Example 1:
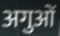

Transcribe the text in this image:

अगुओं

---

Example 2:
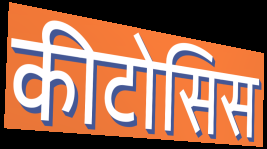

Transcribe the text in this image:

कीटोसिस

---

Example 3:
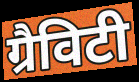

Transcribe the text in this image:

ग्रैविटी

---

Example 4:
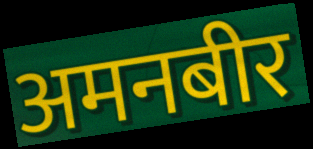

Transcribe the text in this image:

अमनबीर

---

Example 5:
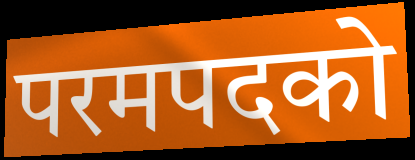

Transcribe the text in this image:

परमपदको